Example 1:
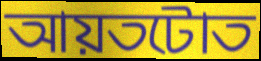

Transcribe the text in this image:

আয়তটোত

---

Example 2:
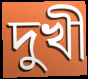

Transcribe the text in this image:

দুখী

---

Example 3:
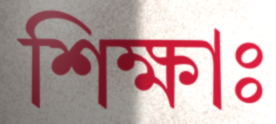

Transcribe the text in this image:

শিক্ষাঃ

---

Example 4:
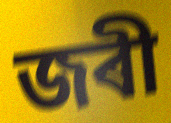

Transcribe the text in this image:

জৰী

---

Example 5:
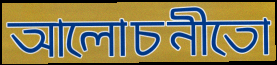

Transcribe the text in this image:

আলোচনীতো